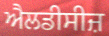
ਐਲਡੀਸੀਜ਼